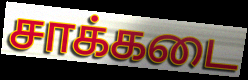
சாக்கடை